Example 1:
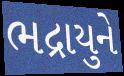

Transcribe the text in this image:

ભદ્રાયુને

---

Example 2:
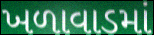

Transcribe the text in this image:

ખળાવાડમાં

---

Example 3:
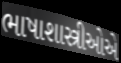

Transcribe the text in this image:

ભાષાશાસ્ત્રીઓએ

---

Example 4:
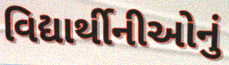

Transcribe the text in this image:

વિદ્યાર્થીનીઓનું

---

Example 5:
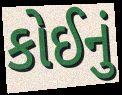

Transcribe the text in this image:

કોઈનું